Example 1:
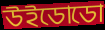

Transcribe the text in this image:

উইডোডো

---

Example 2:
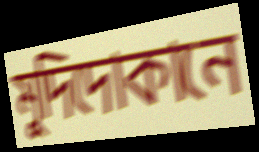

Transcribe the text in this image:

মুদিদোকানে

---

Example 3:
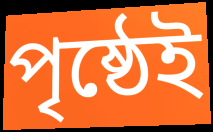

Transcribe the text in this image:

পৃষ্ঠেই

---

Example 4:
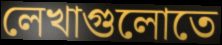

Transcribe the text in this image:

লেখাগুলোতে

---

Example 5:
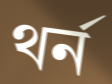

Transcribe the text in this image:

থর্ন